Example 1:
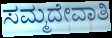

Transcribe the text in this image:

ಸಮ್ಮದೇವಾತಿ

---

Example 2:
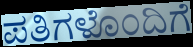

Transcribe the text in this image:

ಪತಿಗಳೊಂದಿಗೆ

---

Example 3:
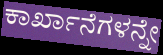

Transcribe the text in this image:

ಕಾರ್ಖಾನೆಗಳನ್ನೇ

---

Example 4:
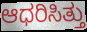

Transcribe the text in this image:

ಆಧರಿಸಿತ್ತು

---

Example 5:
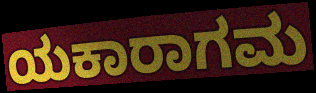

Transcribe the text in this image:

ಯಕಾರಾಗಮ